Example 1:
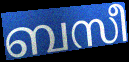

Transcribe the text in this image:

ബസീ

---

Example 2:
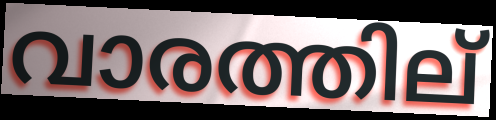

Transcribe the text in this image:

വാരത്തില്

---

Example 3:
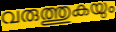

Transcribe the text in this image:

വരുത്തുകയും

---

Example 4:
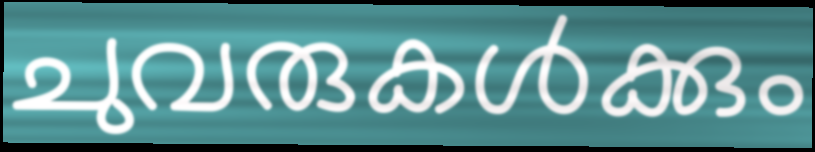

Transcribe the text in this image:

ചുവരുകൾക്കും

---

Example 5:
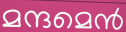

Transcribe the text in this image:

മന്ദമെൻ